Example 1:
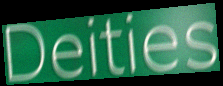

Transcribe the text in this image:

Deities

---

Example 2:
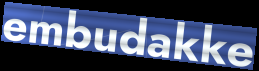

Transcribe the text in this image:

embudakke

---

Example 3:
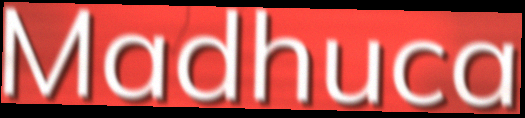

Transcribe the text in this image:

Madhuca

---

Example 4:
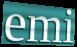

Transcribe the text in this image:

emi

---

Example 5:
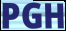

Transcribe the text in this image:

PGH